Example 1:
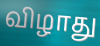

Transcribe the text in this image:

விழாது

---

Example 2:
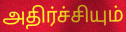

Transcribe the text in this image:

அதிர்ச்சியும்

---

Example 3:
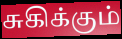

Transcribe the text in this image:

சுகிக்கும்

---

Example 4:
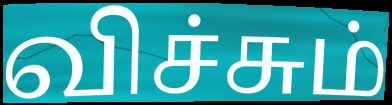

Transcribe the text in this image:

விச்சும்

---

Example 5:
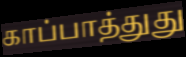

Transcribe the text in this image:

காப்பாத்துது